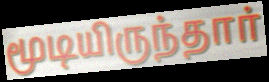
மூடியிருந்தார்